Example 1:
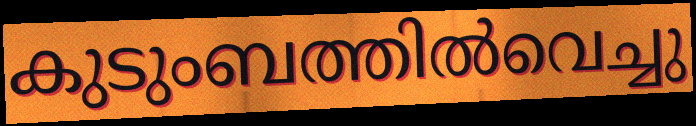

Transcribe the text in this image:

കുടുംബത്തിൽവെച്ചു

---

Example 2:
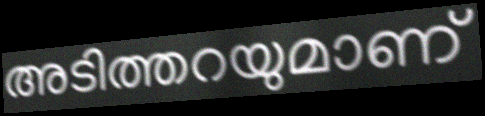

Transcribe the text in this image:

അടിത്തറയുമാണ്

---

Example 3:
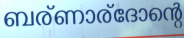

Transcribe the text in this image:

ബര്ണാര്ദോന്റെ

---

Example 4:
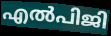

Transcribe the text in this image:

എൽപിജി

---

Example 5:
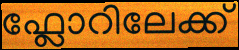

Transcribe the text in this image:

ഫ്ലോറിലേക്ക്